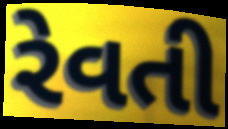
રેવતી